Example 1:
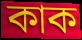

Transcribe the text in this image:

কাক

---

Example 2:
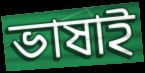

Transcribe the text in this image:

ভাষাই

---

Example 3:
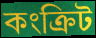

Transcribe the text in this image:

কংক্ৰিট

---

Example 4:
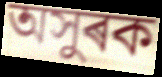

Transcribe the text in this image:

অসুৰক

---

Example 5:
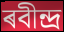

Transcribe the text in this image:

ৰবীন্দ্ৰ